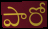
పారో